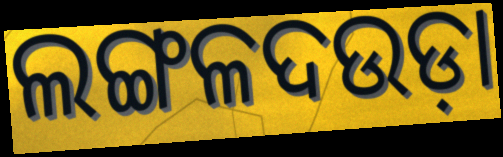
ଲଙ୍ଗଳଦଉଡ଼ା